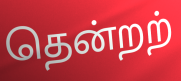
தென்றற்